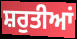
ਸ਼ਰੁਤੀਆਂ